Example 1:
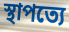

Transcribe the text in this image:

স্থাপত্যে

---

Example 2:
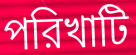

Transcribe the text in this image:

পরিখাটি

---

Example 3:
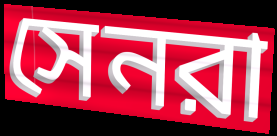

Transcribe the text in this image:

সেনরা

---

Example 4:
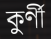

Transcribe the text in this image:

কুর্ণী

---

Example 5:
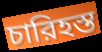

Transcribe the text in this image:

চারিহস্ত